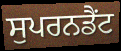
ਸੁਪਰਨਡੈਂਟ